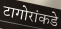
टागोरांकडे